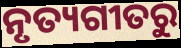
ନୃତ୍ୟଗୀତରୁ